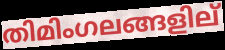
തിമിംഗലങ്ങളില്